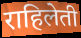
राहिलेती